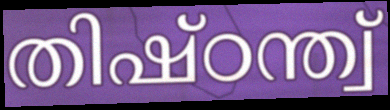
തിഷ്ഠന്ത്വ്